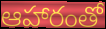
ఆహారంతో